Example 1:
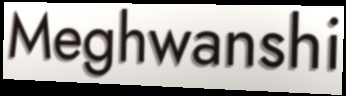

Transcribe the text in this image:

Meghwanshi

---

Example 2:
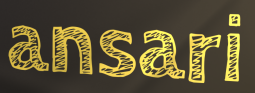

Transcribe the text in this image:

ansari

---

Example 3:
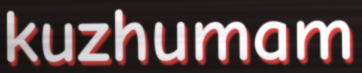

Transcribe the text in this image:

kuzhumam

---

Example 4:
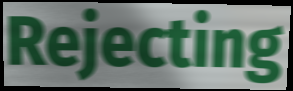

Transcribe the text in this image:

Rejecting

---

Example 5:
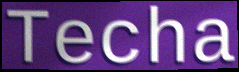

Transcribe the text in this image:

Techa